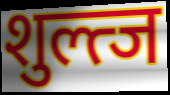
शुल्त्ज